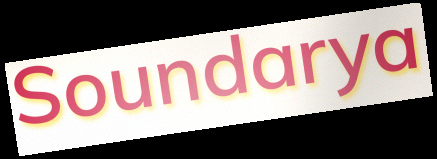
Soundarya